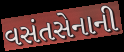
વસંતસેનાની